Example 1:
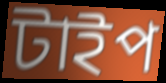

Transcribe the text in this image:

টাইপ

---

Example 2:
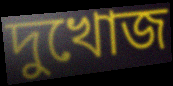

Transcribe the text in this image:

দুখোজ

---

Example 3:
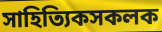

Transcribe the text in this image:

সাহিত্যিকসকলক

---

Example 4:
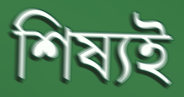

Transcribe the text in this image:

শিষ্যই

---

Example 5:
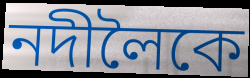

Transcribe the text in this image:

নদীলৈকে